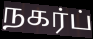
நகர்ப்